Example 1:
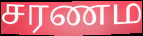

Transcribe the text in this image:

சரணம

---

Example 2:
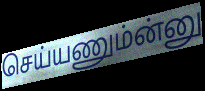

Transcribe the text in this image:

செய்யணும்ன்னு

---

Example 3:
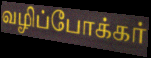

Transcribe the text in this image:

வழிப்போக்கர்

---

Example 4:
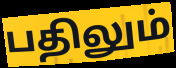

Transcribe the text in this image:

பதிலும்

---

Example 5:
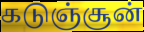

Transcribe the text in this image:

கடுஞ்சூன்